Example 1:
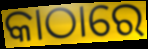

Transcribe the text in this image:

କାଠାରେ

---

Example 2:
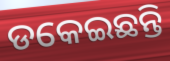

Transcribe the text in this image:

ଡକେଇଛନ୍ତି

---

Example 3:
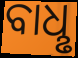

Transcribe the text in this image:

ବାଧୢ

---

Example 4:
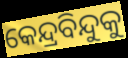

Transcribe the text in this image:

କେନ୍ଦ୍ରବିନ୍ଦୁକୁ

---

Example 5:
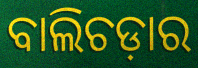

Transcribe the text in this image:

ବାଲିଚଡ଼ାର